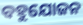
ବହୁଯୋଜନ